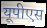
यूपीएस